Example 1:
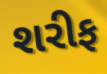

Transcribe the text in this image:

શરીફ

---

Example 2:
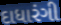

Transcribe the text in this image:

દાધારંગી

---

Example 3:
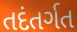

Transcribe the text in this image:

તદંતર્ગત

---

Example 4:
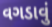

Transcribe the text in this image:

વગડાવું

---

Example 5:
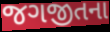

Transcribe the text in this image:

જગજીતના